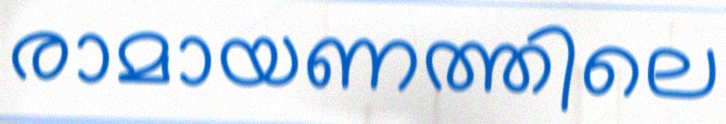
രാമായണത്തിലെ